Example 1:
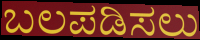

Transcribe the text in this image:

ಬಲಪಡಿಸಲು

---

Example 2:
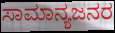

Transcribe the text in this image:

ಸಾಮಾನ್ಯಜನರ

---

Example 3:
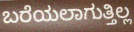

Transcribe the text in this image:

ಬರೆಯಲಾಗುತ್ತಿಲ್ಲ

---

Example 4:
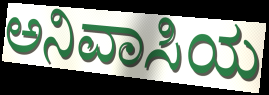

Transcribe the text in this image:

ಅನಿವಾಸಿಯ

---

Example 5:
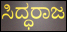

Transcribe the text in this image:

ಸಿದ್ಧರಾಜ